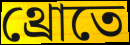
থ্রোতে